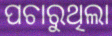
ପଚାରୁଥିଲା